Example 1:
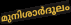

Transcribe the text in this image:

മുനിശാർദൂലം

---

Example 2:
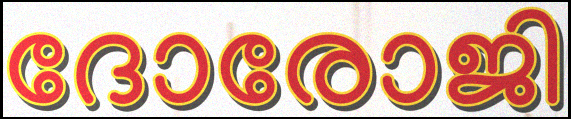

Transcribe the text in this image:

ദോരോജി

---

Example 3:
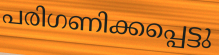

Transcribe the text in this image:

പരിഗണിക്കപ്പെട്ടു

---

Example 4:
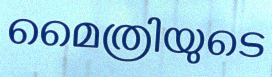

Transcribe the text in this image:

മൈത്രിയുടെ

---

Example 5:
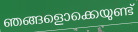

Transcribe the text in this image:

ഞങ്ങളൊക്കെയുണ്ട്